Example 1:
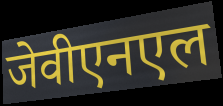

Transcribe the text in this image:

जेवीएनएल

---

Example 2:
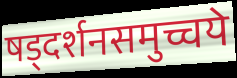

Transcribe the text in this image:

षड्दर्शनसमुच्चये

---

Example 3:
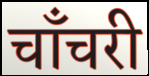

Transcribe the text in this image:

चाँचरी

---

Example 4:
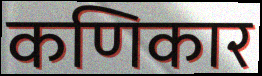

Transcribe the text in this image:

कणिकार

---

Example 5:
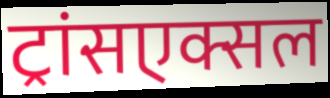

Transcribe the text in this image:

ट्रांसएक्सल